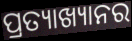
ପ୍ରତ୍ୟାଖ୍ୟାନର